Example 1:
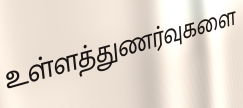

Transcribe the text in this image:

உள்ளத்துணர்வுகளை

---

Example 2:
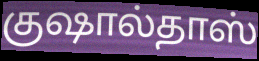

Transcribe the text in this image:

குஷால்தாஸ்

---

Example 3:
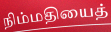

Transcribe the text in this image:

நிம்மதியைத்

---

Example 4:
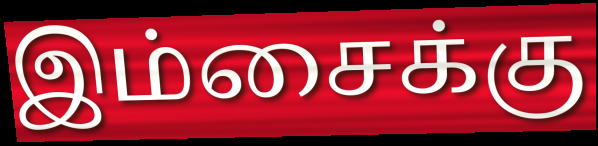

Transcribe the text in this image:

இம்சைக்கு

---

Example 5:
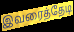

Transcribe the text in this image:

இவரைத்தேடி